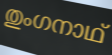
തുംഗനാഥ്